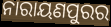
ନାରାୟଣପୁରର